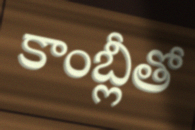
కాంబ్లీతో